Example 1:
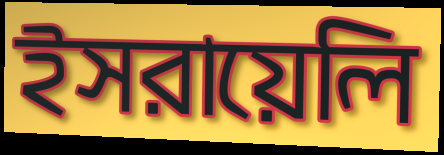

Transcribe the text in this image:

ইসরায়েলি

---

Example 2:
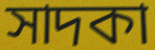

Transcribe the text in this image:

সাদকা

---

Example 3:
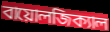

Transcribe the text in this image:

বায়োলজিক্যাল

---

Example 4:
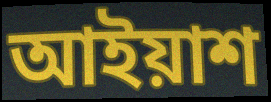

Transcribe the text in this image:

আইয়াশ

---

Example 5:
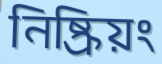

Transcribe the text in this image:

নিষ্ক্রিয়ং